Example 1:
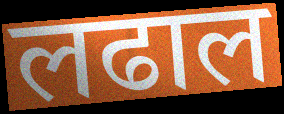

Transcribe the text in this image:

लढाल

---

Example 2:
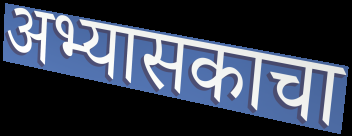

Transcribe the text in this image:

अभ्यासकाचा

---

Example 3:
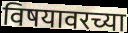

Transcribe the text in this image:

विषयावरच्या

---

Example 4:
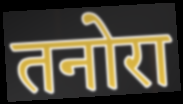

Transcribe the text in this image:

तनोरा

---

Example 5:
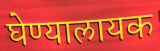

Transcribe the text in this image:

घेण्यालायक